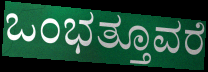
ಒಂಭತ್ತೂವರೆ